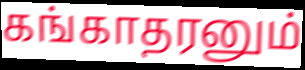
கங்காதரனும்